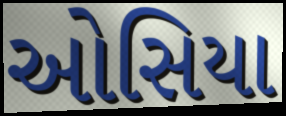
ઓસિયા